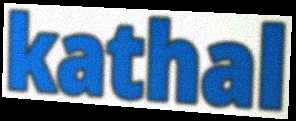
kathal